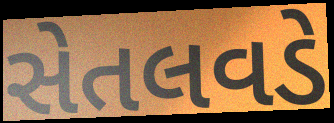
સેતલવડે